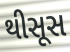
થીસૂસ